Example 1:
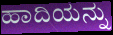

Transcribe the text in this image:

ಹಾದಿಯನ್ನು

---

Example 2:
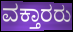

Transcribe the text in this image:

ವಕ್ತಾರರು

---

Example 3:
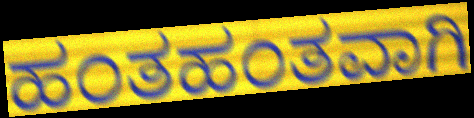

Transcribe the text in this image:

ಹಂತಹಂತವಾಗಿ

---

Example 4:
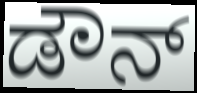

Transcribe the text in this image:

ಡೌನ್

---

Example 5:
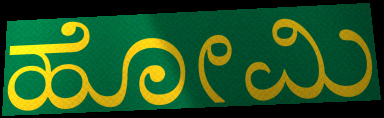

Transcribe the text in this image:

ಹೋಮಿ